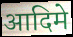
आदिमे